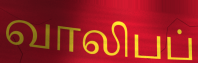
வாலிபப்